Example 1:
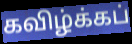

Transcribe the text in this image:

கவிழ்க்கப்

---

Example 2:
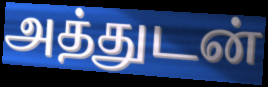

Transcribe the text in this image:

அத்துடன்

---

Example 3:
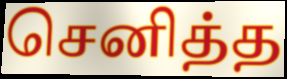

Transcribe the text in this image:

செனித்த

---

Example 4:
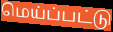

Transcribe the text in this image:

மெய்ப்பட்டு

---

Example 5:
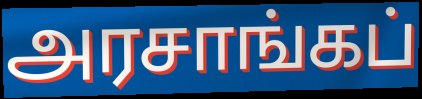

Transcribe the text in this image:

அரசாங்கப்